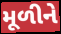
મૂળીને